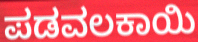
ಪಡವಲಕಾಯಿ